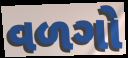
વળગો